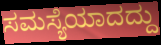
ಸಮಸ್ಯೆಯಾದದ್ದು